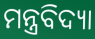
ମନ୍ତ୍ରବିଦ୍ୟା